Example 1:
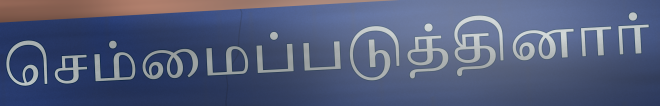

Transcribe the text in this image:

செம்மைப்படுத்தினார்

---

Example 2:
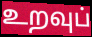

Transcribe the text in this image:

உறவுப்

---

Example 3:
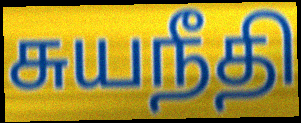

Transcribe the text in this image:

சுயநீதி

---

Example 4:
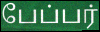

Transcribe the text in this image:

பேப்பர்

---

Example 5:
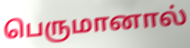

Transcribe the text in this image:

பெருமானால்